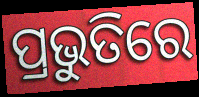
ପ୍ରଭୁତିରେ